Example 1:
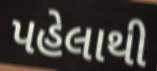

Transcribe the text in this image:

પહેલાથી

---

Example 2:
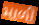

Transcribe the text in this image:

માળી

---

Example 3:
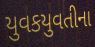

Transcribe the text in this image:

યુવકયુવતીના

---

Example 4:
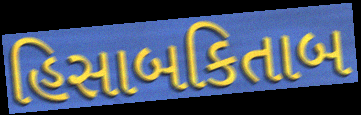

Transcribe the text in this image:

હિસાબકિતાબ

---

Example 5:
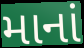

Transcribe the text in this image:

માનાં